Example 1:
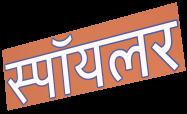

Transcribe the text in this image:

स्पॉयलर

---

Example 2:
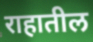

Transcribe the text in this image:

राहातील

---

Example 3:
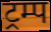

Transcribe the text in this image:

ट्रम्प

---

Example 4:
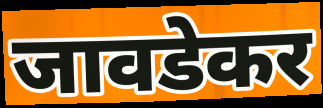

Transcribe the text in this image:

जावडेकर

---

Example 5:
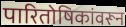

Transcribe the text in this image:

पारितोषिकांवरून